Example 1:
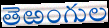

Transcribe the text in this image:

తెఱంగుల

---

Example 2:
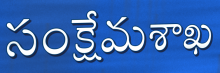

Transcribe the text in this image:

సంక్షేమశాఖ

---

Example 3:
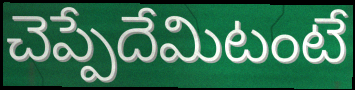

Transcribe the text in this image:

చెప్పేదేమిటంటే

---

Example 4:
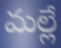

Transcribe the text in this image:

మల్లే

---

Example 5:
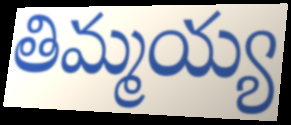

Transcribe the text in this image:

తిమ్మయ్య